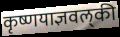
कृष्णयाज्ञवल्की